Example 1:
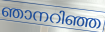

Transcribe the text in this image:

ഞാനറിഞ്ഞ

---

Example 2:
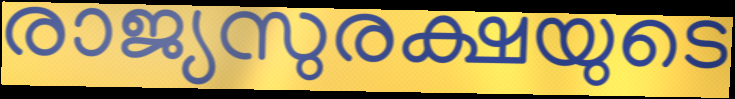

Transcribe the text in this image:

രാജ്യസുരക്ഷയുടെ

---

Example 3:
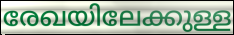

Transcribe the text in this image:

രേഖയിലേക്കുള്ള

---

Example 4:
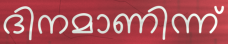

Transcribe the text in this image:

ദിനമാണിന്ന്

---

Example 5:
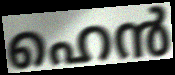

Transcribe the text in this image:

ഹെൻ